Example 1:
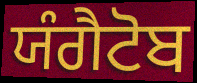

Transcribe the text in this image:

ਯੰਗੈਟੋਬ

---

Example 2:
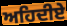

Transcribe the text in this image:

ਅਹਿਦੀਏ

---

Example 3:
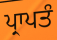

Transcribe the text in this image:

ਪ੍ਰਾਪਤੰ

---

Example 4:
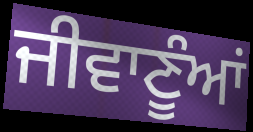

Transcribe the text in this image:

ਜੀਵਾਣੂੰਆਂ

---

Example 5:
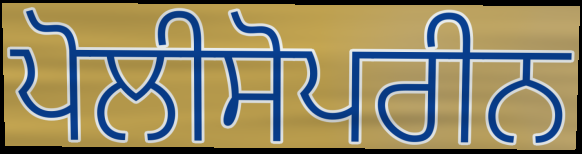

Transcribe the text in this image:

ਪੋਲੀਸੋਪਰੀਨ